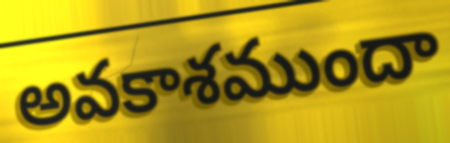
అవకాశముందా